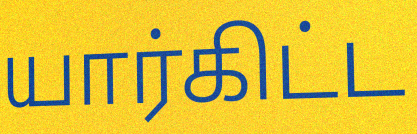
யார்கிட்ட